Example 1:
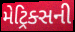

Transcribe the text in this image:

મેટ્રિક્સની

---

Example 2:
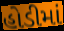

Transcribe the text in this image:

હોડીમાં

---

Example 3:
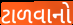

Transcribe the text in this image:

ટાળવાનો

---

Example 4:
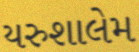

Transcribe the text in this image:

યરુશાલેમ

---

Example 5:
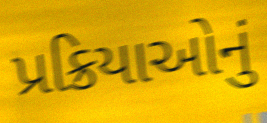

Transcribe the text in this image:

પ્રક્રિયાઓનું